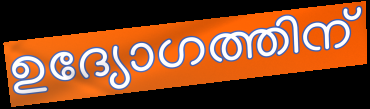
ഉദ്യോഗത്തിന്